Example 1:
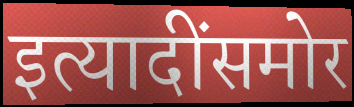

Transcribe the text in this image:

इत्यादींसमोर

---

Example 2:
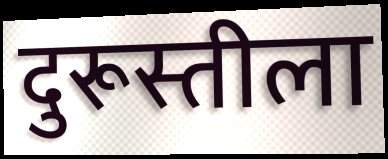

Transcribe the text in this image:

दुरूस्तीला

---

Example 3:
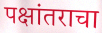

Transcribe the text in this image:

पक्षांतराचा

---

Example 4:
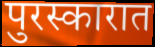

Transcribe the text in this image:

पुरस्कारात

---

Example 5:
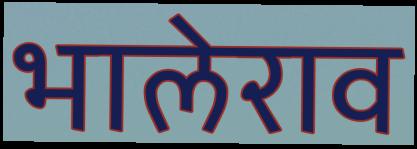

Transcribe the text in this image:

भालेराव